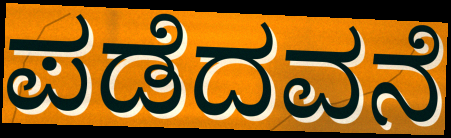
ಪಡೆದವನೆ